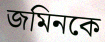
জমিনকে